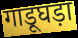
गाडूघड़ा